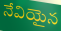
నేవియైన